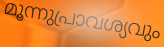
മൂന്നുപ്രാവശ്യവും